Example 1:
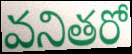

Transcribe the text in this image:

వనితరో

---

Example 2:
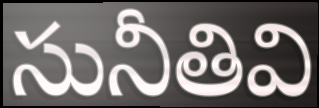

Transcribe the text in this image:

సునీతివి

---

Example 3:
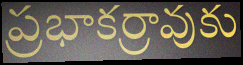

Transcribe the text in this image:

ప్రభాకర్రావుకు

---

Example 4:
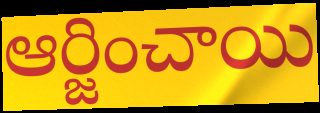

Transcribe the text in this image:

ఆర్జించాయి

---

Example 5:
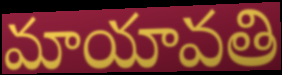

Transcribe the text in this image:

మాయావతి